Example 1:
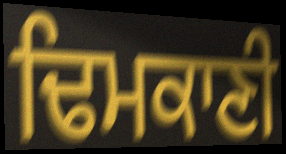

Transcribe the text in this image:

ਢਿਮਕਾਣੀ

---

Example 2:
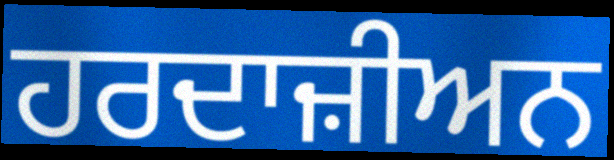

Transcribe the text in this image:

ਹਰਦਾਜ਼ੀਅਨ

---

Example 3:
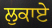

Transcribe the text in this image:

ਲੁਕਾਏ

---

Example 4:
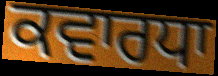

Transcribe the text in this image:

ਕਵਾਰਧਾ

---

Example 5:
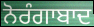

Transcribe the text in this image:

ਨੋਰੰਗਾਬਾਦ